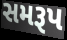
સમરૂપ